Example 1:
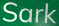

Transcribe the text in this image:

Sark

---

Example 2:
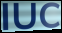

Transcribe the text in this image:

IUC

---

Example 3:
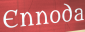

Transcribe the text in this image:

Ennoda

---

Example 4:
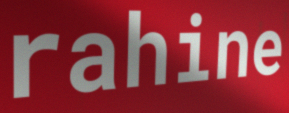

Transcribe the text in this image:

rahine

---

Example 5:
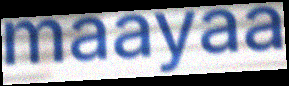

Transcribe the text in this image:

maayaa